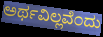
ಅರ್ಥವಿಲ್ಲವೆಂದು